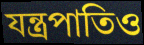
যন্ত্রপাতিও